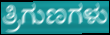
ತ್ರಿಗುಣಗಳು